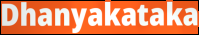
Dhanyakataka